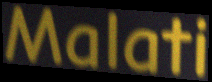
Malati